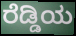
ರೆಡ್ಡಿಯ